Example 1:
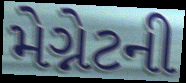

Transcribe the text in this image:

મેગ્નેટની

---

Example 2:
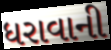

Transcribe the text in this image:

ધરાવાની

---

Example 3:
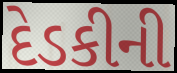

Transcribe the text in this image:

દેડકીની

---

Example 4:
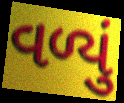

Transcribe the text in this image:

વળ્યું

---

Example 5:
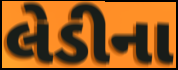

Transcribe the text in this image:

લેડીના